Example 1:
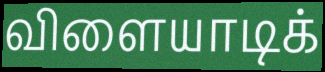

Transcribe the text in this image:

விளையாடிக்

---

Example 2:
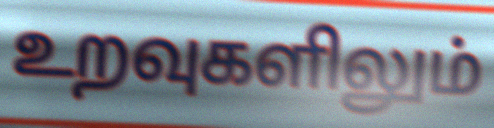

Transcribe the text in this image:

உறவுகளிலும்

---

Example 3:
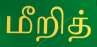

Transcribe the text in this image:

மீறித்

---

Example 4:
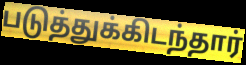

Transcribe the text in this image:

படுத்துக்கிடந்தார்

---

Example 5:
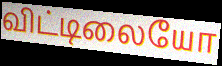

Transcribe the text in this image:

விட்டிலையோ